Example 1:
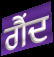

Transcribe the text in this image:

ਗੈਂਦ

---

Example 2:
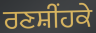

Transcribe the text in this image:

ਰਣਸ਼ੀਂਹਕੇ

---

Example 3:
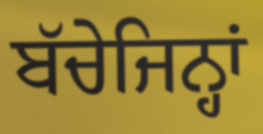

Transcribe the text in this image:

ਬੱਚੇਜਿਨ੍ਹਾਂ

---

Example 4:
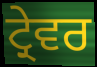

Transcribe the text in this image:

ਟ੍ਰੇਵਰ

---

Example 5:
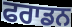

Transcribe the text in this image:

ਫਰਾਡਨ